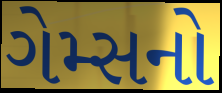
ગેમ્સનો